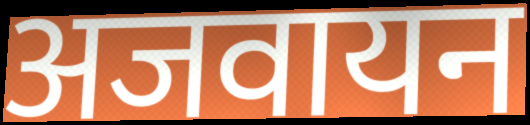
अजवायन